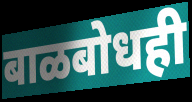
बाळबोधही